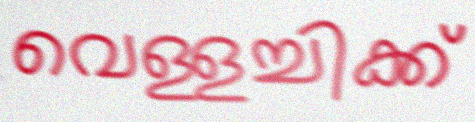
വെള്ളച്ചിക്ക്